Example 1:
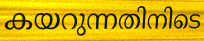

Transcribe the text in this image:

കയറുന്നതിനിടെ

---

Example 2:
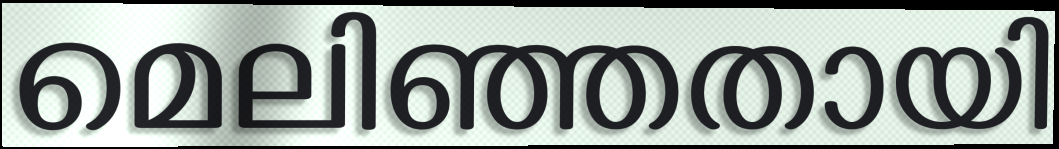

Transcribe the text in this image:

മെലിഞ്ഞതായി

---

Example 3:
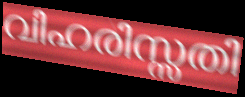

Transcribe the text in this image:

വിഹരിസ്സതി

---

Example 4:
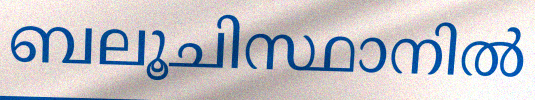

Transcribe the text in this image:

ബലൂചിസ്ഥാനിൽ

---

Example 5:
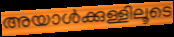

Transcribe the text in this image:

അയാൾക്കുള്ളിലൂടെ